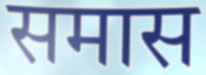
समास